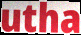
utha